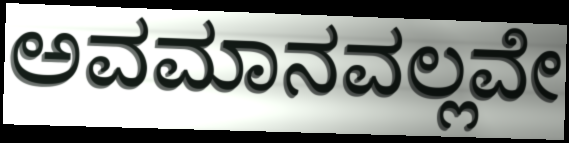
ಅವಮಾನವಲ್ಲವೇ